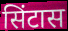
सिंटास